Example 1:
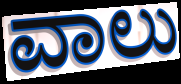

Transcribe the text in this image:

ವಾಲು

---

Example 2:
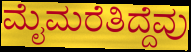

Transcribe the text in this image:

ಮೈಮರೆತಿದ್ದೆವು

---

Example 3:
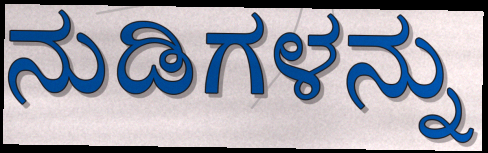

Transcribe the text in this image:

ನುಡಿಗಳನ್ನು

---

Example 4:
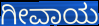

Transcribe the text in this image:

ಗೀವಾಯ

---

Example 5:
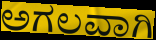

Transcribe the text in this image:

ಅಗಲವಾಗಿ